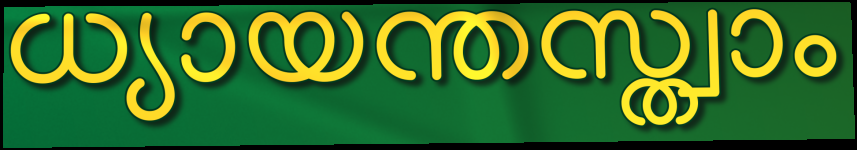
ധ്യായന്തസ്ത്വാം